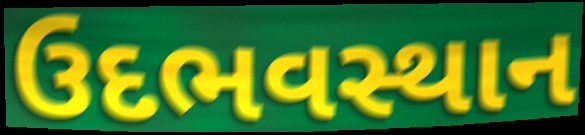
ઉદભવસ્થાન